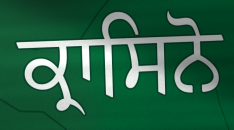
ਕ੍ਰਾਸਿਨੋ